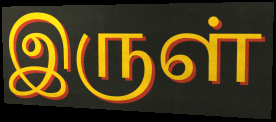
இருள்